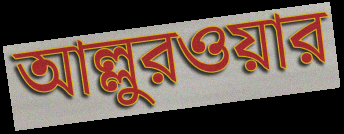
আল্লুরওয়ার